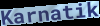
Karnatik